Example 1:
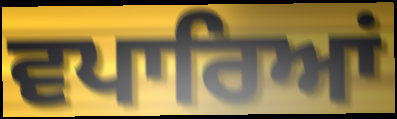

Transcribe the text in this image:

ਵਪਾਰਿਆਂ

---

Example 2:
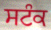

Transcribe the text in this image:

ਸਟੰਕ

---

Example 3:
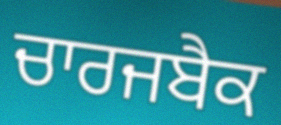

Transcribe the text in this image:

ਚਾਰਜਬੈਕ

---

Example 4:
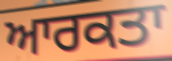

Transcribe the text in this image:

ਆਰਕਤਾ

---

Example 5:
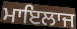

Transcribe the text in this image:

ਮਾਇਲਾਜ